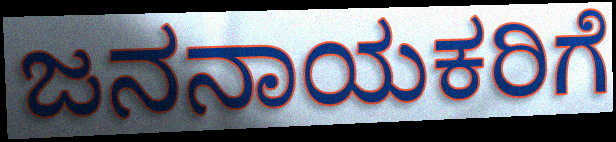
ಜನನಾಯಕರಿಗೆ